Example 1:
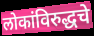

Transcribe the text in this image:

लोकांविरुद्धचे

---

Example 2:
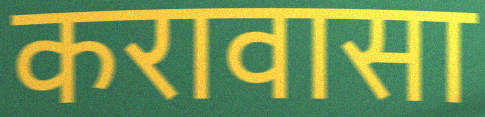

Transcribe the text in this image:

करावासा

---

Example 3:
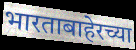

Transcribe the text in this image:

भारताबाहेरच्या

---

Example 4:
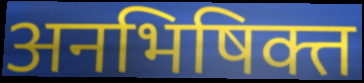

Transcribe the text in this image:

अनभिषिक्त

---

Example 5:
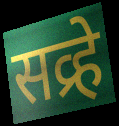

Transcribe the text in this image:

सव्र्हे